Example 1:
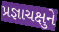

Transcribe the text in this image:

પ્રજ્ઞાચક્ષુને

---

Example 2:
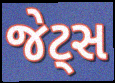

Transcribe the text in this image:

જેટ્સ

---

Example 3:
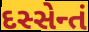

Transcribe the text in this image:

દસ્સેન્તં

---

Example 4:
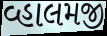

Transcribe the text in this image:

વ્હાલમજી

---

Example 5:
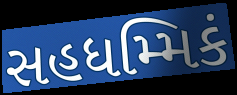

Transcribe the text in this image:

સહધમ્મિકં